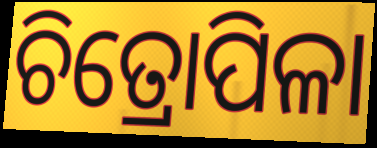
ଚିତ୍ରୋପିଳା